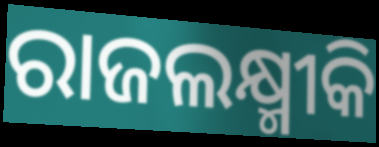
ରାଜଲକ୍ଷ୍ମୀକି